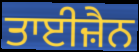
ਤਾਈਜ਼ੈਨ